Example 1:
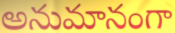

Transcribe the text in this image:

అనుమానంగా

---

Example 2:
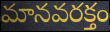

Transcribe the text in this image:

మానవరక్తం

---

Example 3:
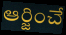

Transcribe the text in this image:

ఆర్జించే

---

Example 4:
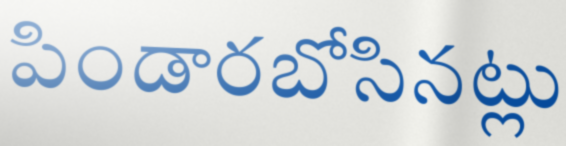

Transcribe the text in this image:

పిండారబోసినట్లు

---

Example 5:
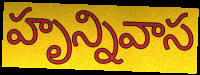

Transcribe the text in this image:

హృన్నివాస